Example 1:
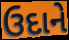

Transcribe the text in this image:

ઉદાને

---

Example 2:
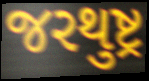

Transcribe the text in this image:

જરથુષ્ટ્ર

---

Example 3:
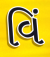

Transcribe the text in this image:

વિં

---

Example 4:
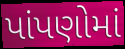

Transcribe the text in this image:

પાંપણોમાં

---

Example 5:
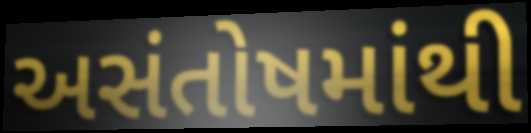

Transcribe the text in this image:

અસંતોષમાંથી